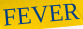
FEVER